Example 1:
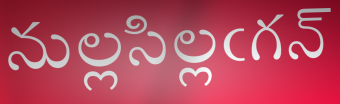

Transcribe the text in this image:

నుల్లసిల్లఁగన్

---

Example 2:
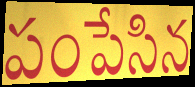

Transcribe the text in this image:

పంపేసిన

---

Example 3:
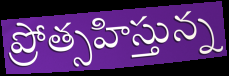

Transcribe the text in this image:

ప్రోత్సహిస్తున్న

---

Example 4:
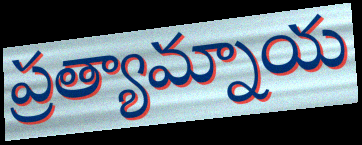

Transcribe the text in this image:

ప్రత్యామ్నాయ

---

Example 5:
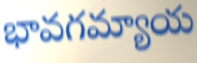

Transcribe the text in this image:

భావగమ్యాయ